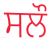
ਸਲੌ